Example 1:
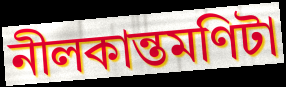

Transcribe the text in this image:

নীলকান্তমণিটা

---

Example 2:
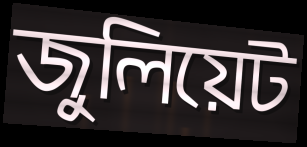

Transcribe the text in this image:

জুলিয়েট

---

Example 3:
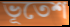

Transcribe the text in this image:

ভূতেশ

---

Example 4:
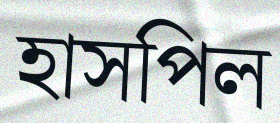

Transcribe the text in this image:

হাসপিল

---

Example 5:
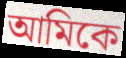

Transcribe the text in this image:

আমিকে